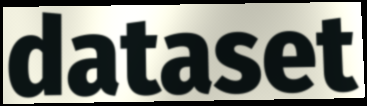
dataset